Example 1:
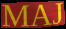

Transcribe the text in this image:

MAJ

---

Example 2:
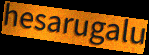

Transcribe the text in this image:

hesarugalu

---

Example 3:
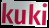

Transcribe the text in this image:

kuki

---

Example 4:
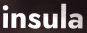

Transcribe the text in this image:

insula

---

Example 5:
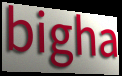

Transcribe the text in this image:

bigha